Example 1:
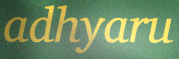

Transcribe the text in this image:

adhyaru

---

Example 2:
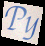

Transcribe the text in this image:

Py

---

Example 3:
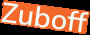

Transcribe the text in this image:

Zuboff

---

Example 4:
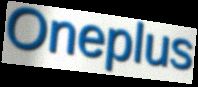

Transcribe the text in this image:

Oneplus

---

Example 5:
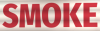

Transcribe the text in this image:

SMOKE